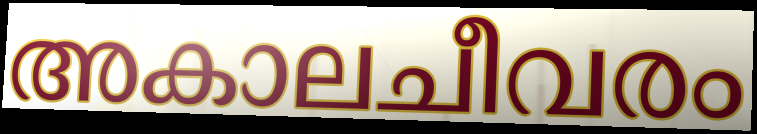
അകാലചീവരം